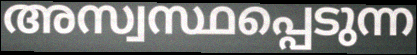
അസ്വസ്ഥപ്പെടുന്ന